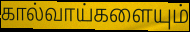
கால்வாய்களையும்